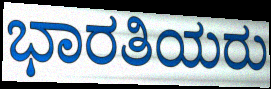
ಭಾರತಿಯರು